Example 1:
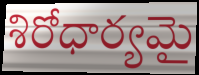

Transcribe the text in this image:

శిరోధార్యమై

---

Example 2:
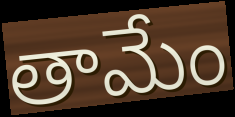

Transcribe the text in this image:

తామేం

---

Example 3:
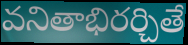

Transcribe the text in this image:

వనితాభిరర్చితే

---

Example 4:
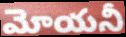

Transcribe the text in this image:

మోయనీ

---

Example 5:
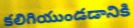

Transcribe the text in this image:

కలిగియుండడానికి